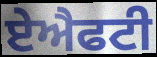
ਏਐਫਟੀ